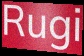
Rugi